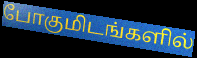
போகுமிடங்களில்